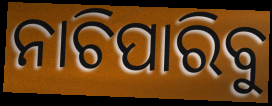
ନାଚିପାରିବୁ